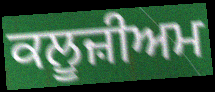
ਕਲੂਜ਼ੀਅਮ